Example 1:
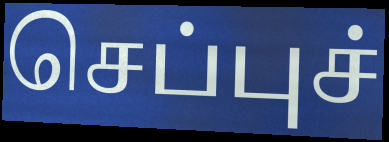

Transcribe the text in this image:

செப்புச்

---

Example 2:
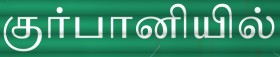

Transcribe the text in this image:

குர்பானியில்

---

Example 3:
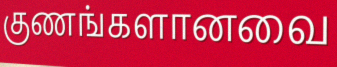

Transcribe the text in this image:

குணங்களானவை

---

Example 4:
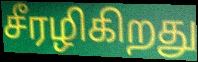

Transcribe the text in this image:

சீரழிகிறது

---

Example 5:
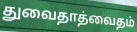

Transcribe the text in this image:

துவைதாத்வைதம்